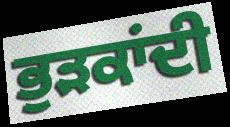
ਭੁੜਕਾਂਦੀ